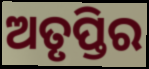
ଅତୃପ୍ତିର